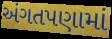
અંગતપણામાં